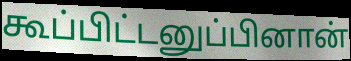
கூப்பிட்டனுப்பினான்